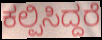
ಕಲ್ಪಿಸಿದ್ದರೆ